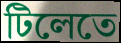
টিলেতে